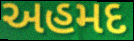
અહમદ